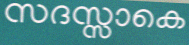
സദസ്സാകെ